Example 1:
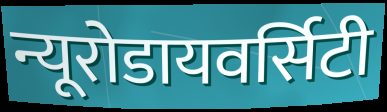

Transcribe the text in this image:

न्यूरोडायवर्सिटी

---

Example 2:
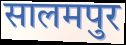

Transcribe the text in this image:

सालमपुर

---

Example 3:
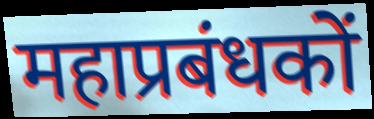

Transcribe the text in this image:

महाप्रबंधकों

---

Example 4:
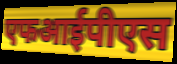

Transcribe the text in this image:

एफआईपीएस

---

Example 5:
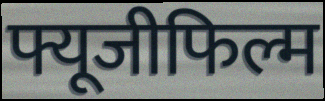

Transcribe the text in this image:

फ्यूजीफिल्म